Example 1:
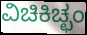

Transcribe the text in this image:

ವಿಚಿಕಿಚ್ಛಂ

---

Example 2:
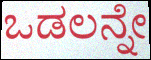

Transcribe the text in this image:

ಒಡಲನ್ನೇ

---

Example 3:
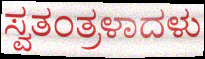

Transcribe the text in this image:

ಸ್ವತಂತ್ರಳಾದಳು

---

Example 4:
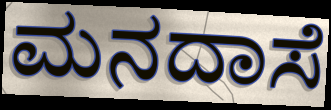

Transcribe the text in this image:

ಮನದಾಸೆ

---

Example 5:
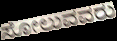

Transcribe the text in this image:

ಸೋಲುವವರು